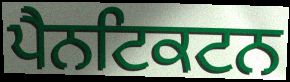
ਪੈਨਟਿਕਟਨ